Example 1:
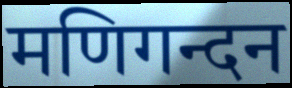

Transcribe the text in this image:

मणिगन्दन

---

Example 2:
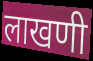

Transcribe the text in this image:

लाखणी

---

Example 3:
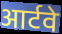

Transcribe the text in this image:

आर्टवे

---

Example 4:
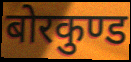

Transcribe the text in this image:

बोरकुण्ड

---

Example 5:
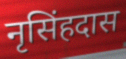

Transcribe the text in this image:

नृसिंहदास